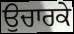
ਉਚਾਰਕੇ